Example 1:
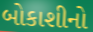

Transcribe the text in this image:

બોકાશીનો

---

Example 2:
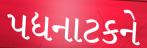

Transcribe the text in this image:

પદ્યનાટકને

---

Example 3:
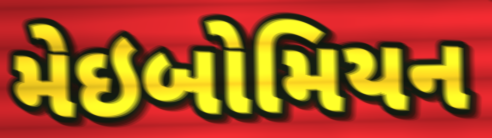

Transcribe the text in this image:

મેઇબોમિયન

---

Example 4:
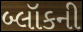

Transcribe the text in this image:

બ્લૉકની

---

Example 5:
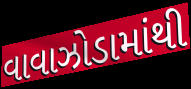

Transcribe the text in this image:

વાવાઝોડામાંથી